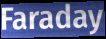
Faraday